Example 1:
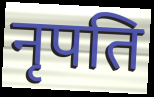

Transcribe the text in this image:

नृपति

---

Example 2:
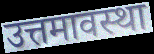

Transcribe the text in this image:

उत्तमावस्था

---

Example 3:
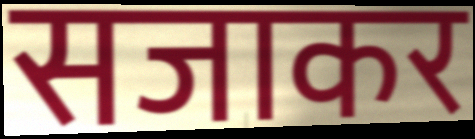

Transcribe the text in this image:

सजाकर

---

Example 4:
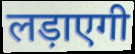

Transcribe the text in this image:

लड़ाएगी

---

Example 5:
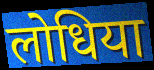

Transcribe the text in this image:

लोधिया